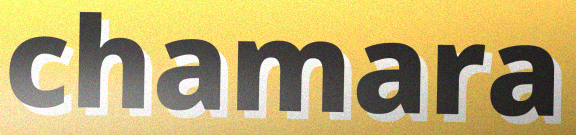
chamara